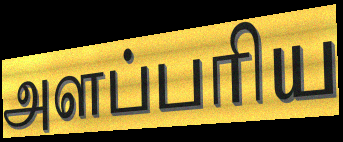
அளப்பரிய